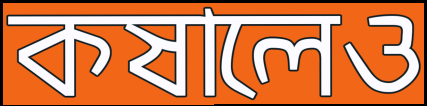
কষালেও